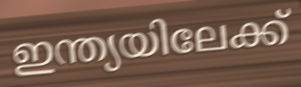
ഇന്ത്യയിലേക്ക്